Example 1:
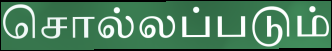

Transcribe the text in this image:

சொல்லப்படும்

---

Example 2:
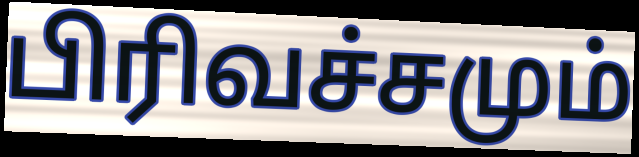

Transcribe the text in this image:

பிரிவச்சமும்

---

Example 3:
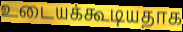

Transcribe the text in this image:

உடையக்கூடியதாக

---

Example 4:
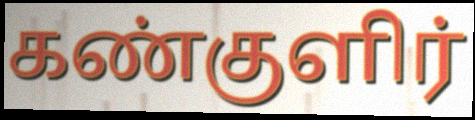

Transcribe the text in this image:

கண்குளிர்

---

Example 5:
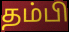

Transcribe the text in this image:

தம்பி